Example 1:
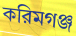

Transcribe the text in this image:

করিমগঞ্জ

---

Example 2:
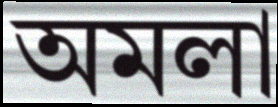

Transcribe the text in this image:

অমলা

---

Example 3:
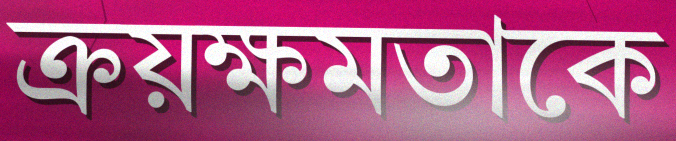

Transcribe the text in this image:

ক্রয়ক্ষমতাকে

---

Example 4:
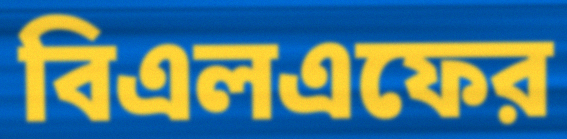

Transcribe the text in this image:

বিএলএফের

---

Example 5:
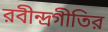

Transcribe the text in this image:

রবীন্দ্রগীতির